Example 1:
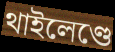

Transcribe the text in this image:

থাইলেণ্ডে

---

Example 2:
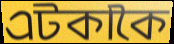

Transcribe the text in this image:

এটকাকৈ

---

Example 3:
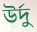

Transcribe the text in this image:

উৰ্দু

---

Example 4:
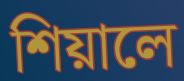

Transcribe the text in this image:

শিয়ালে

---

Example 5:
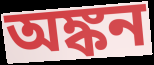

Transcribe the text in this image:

অঙ্কন